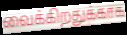
வைக்கிறதுக்காக